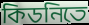
কিডনিতে